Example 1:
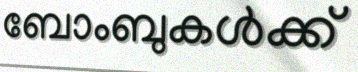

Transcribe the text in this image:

ബോംബുകൾക്ക്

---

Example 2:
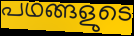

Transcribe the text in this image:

പഥങ്ങളുടെ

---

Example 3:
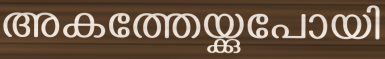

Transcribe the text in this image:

അകത്തേയ്ക്കുപോയി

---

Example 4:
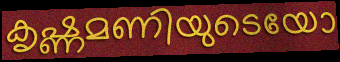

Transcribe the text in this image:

കൃഷ്ണമണിയുടെയോ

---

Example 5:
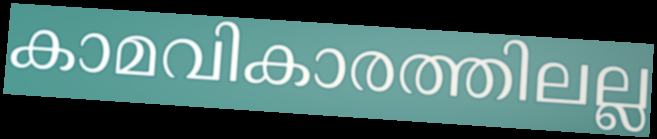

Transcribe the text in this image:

കാമവികാരത്തിലല്ല